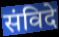
संविदे